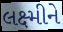
લક્ષ્મીને